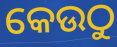
କେଉଠୁ